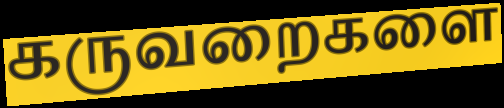
கருவறைகளை